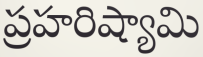
ప్రహరిష్యామి